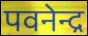
पवनेन्द्र